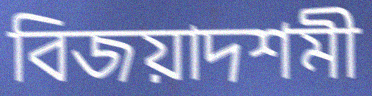
বিজয়াদশমী